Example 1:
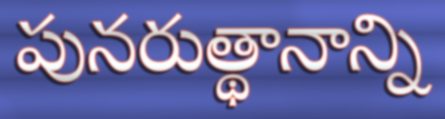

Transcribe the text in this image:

పునరుత్థానాన్ని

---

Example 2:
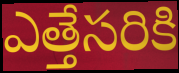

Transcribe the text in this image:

ఎత్తేసరికి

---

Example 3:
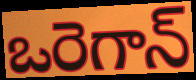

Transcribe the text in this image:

ఒరెగాన్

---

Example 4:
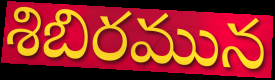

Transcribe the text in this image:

శిబిరమున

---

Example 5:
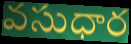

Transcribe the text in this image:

వసుధార